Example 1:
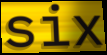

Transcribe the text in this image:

six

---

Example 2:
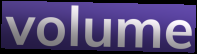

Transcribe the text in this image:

volume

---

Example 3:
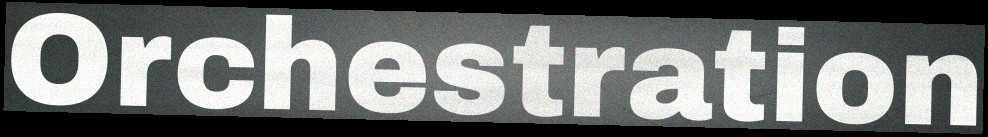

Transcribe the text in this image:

Orchestration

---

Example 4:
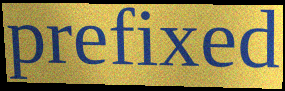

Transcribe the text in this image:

prefixed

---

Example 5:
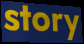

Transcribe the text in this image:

story